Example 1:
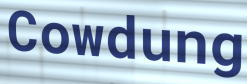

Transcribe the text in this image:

Cowdung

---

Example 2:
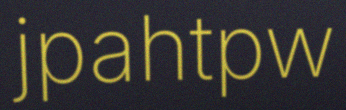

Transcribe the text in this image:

jpahtpw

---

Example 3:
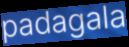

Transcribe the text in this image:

padagala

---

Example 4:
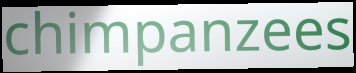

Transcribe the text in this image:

chimpanzees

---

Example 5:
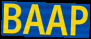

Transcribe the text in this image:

BAAP